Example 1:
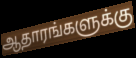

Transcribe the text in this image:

ஆதாரங்களுக்கு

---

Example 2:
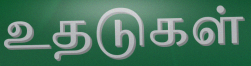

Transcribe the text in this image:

உதடுகள்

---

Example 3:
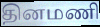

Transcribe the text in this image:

தினமணி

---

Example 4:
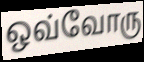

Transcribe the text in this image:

ஒவ்வோரு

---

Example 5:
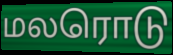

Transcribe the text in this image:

மலரொடு